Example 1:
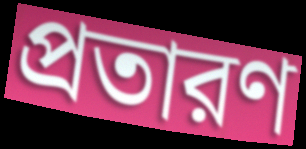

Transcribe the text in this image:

প্রতারণ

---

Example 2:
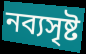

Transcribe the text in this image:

নব্যসৃষ্ট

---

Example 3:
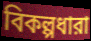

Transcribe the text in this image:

বিকল্পধারা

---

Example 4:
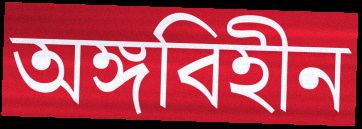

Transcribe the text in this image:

অঙ্গবিহীন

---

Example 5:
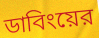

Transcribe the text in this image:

ডাবিংয়ের